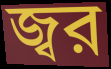
জ্বর